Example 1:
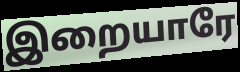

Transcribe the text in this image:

இறையாரே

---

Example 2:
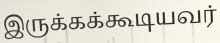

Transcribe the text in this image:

இருக்கக்கூடியவர்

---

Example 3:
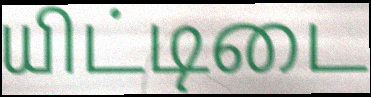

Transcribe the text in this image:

யிட்டிடை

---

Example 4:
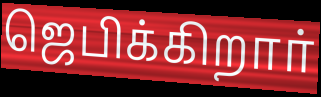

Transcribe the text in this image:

ஜெபிக்கிறார்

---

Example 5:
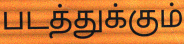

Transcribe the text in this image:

படத்துக்கும்